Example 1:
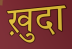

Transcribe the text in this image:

ख़ुदा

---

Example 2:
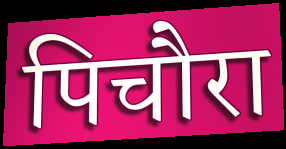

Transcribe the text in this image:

पिचौरा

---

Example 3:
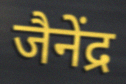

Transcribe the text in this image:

जैनेंद्र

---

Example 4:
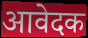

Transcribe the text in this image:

आवेदक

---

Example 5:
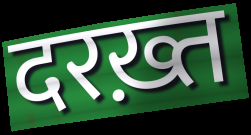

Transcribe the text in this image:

दरख़्त